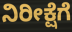
ನಿರೀಕ್ಷೆಗೆ